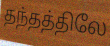
தந்தத்திலே